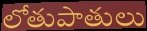
లోతుపాతులు